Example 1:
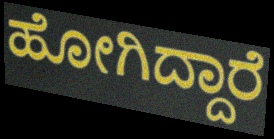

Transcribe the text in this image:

ಹೋಗಿದ್ದಾರೆ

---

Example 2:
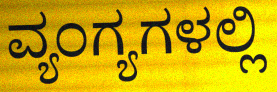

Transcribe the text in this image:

ವ್ಯಂಗ್ಯಗಳಲ್ಲಿ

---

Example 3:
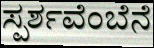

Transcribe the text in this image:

ಸ್ಪರ್ಶವೆಂಬೆನೆ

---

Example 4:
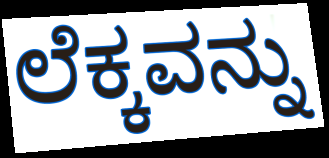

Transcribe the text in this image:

ಲೆಕ್ಕವನ್ನು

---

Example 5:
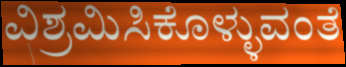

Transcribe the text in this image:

ವಿಶ್ರಮಿಸಿಕೊಳ್ಳುವಂತೆ